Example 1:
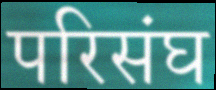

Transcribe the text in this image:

परिसंघ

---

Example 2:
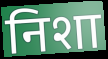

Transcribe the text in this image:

निशा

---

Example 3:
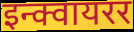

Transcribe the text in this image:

इन्क्वायरर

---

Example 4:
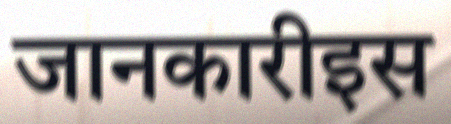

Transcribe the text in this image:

जानकारीइस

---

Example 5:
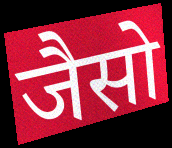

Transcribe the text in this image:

जैसो